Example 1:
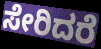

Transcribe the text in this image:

ಸೇರಿದರೆ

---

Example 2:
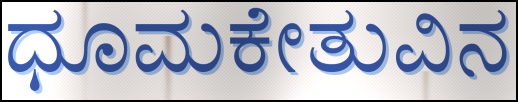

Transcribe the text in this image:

ಧೂಮಕೇತುವಿನ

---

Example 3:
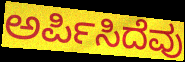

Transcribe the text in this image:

ಅರ್ಪಿಸಿದೆವು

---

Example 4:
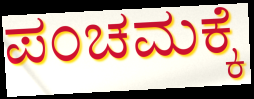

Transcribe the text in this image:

ಪಂಚಮಕ್ಕೆ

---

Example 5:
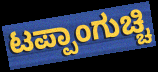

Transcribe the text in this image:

ಟಪ್ಪಾಂಗುಚ್ಚಿ